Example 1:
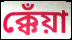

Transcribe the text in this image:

ক্কেঁয়া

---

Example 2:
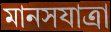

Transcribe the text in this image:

মানসযাত্রা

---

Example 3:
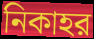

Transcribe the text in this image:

নিকাহর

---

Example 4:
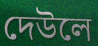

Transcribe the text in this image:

দেউলে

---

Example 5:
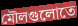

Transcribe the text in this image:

মৌলগুলোতে